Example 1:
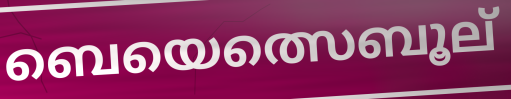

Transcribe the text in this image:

ബെയെത്സെബൂല്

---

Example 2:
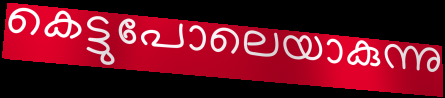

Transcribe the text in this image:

കെട്ടുപോലെയാകുന്നു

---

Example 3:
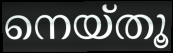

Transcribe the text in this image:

നെയ്തൂ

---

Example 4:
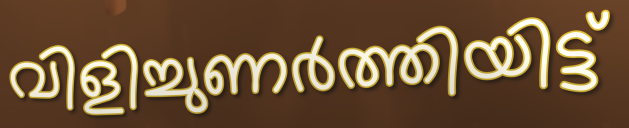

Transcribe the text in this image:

വിളിച്ചുണർത്തിയിട്ട്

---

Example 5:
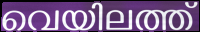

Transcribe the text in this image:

വെയിലത്ത്